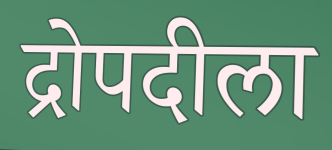
द्रोपदीला